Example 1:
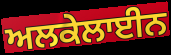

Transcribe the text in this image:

ਅਲਕੇਲਾਈਨ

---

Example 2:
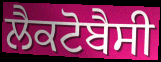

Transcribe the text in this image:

ਲੈਕਟੋਬੈਸੀ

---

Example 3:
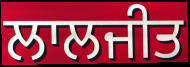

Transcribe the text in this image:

ਲਾਲਜੀਤ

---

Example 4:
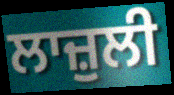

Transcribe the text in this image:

ਲਾਜ਼ੁਲੀ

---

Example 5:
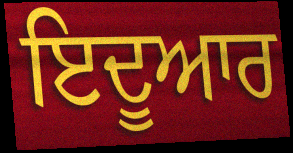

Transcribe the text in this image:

ਇਦੂਆਰ